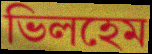
ভিলহেম